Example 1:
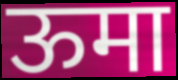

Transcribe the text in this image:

ऊमा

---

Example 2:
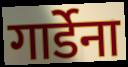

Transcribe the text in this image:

गार्डेना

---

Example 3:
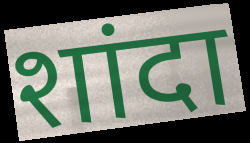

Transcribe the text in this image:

शांदा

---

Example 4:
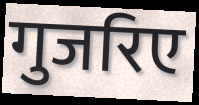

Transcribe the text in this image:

गुजरिए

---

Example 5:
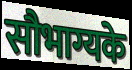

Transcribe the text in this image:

सौभाग्यके